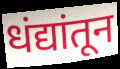
धंद्यांतून